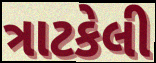
ત્રાટકેલી